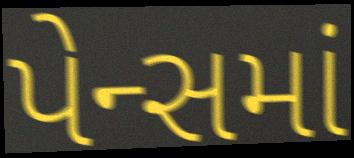
પેન્સમાં